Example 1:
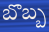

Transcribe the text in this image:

బొబ్బ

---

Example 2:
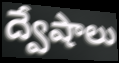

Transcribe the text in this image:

ద్వేషాలు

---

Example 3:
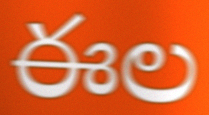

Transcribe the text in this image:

ఈల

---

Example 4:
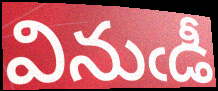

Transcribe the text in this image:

వినుఁడీ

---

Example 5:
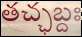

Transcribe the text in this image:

తచ్ఛబ్దః